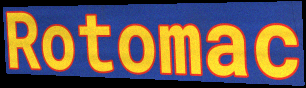
Rotomac